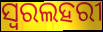
ସ୍ୱରଲହରୀ